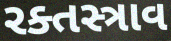
રક્તસ્ત્રાવ